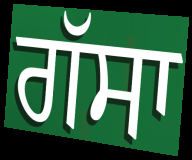
ਗੱਸਾ